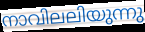
നാവിലലിയുന്നു